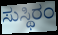
ಸುಸ್ಥಿರಂ